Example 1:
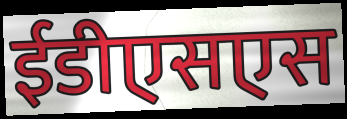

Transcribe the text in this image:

ईडीएसएस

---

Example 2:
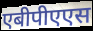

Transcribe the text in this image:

एबीपीएएस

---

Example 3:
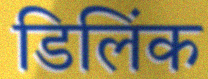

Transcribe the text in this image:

डिलिंक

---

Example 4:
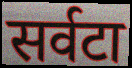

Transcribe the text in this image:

सर्वटा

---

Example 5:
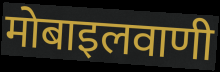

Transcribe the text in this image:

मोबाइलवाणी